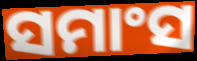
ସମାଂସ